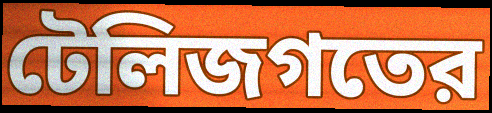
টেলিজগতের